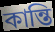
কান্তি